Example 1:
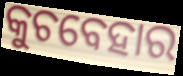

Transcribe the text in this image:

କୁଚବେହାର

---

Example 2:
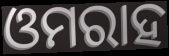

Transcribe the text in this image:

ଓମରାହ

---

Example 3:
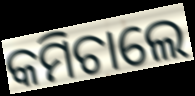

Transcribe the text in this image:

କମିଚାଲେ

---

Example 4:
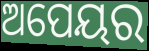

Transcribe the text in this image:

ଅପେୟର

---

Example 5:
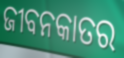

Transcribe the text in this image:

ଜୀବନକାତର